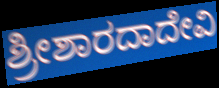
ಶ್ರೀಶಾರದಾದೇವಿ